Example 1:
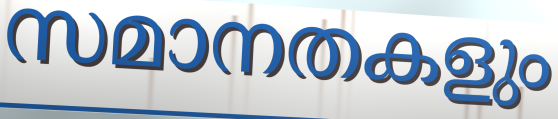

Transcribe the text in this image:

സമാനതകളും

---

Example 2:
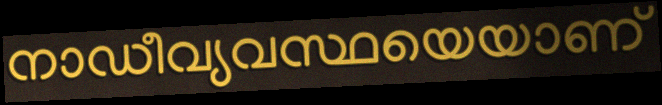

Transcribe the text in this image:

നാഡീവ്യവസ്ഥയെയാണ്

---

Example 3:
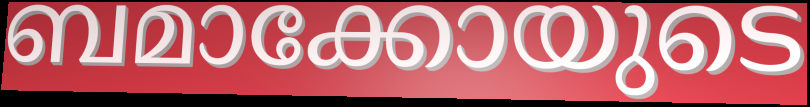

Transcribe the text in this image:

ബമാക്കോയുടെ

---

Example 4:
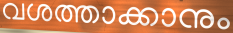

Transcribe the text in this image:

വശത്താക്കാനും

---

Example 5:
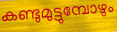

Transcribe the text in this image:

കണ്ടുമുട്ടുമ്പോഴും